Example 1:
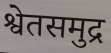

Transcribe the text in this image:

श्वेतसमुद्र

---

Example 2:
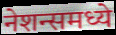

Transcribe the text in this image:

नेशन्समध्ये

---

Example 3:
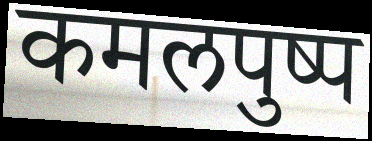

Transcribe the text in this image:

कमलपुष्प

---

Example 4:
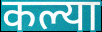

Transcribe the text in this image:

कल्या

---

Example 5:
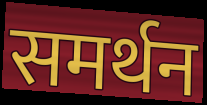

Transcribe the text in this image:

समर्थन